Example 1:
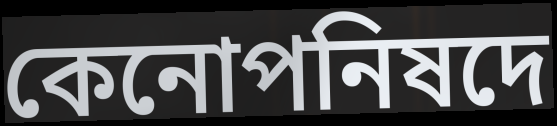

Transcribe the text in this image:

কেনোপনিষদে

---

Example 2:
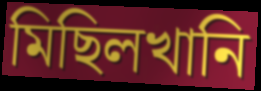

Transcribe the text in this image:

মিছিলখানি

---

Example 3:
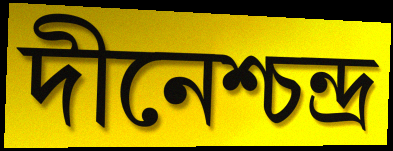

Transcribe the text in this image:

দীনেশ্চন্দ্র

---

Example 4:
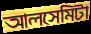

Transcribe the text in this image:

আলসেমিটা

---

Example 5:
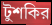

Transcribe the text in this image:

টুশকির